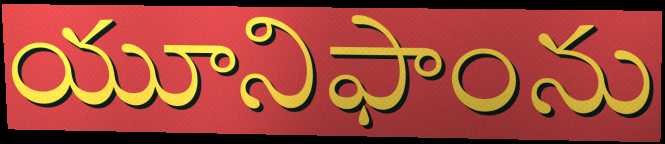
యూనిఫాంను